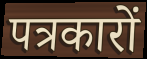
पत्रकारों